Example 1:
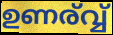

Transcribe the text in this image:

ഉണര്വ്വ്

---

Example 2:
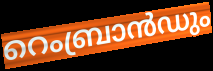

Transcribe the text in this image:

റെംബ്രാൻഡും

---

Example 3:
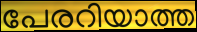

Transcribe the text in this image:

പേരറിയാത്ത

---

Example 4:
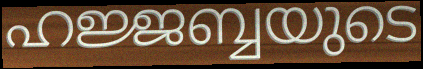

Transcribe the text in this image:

ഹജ്ജബ്ബയുടെ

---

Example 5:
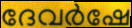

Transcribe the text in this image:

ദേവർഷേ